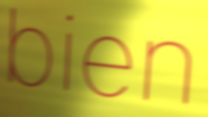
bien